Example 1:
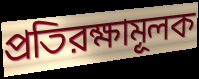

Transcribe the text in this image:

প্রতিরক্ষামূলক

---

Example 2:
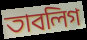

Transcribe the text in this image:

তাবলিগ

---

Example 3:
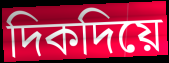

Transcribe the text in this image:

দিকদিয়ে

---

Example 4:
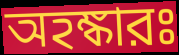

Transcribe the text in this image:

অহঙ্কারঃ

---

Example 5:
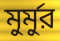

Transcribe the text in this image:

মুর্মুর